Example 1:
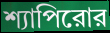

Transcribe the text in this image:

শ্যাপিরোর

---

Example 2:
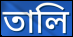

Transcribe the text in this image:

তালি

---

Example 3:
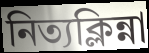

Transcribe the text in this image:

নিত্যক্লিন্না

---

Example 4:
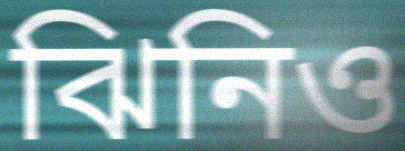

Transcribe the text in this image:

ঝিনিও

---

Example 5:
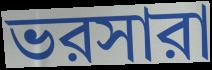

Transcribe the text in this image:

ভরসারা